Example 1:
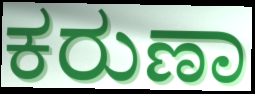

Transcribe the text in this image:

ಕರುಣಾ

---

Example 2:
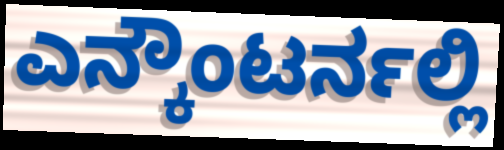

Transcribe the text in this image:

ಎನ್ಕೌಂಟರ್ನಲ್ಲಿ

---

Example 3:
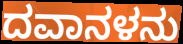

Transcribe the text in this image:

ದವಾನಳನು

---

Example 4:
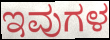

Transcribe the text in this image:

ಇವುಗಳ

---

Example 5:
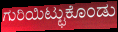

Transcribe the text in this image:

ಗುರಿಯಿಟ್ಟುಕೊಂಡು